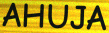
AHUJA